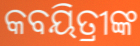
କବୟିତ୍ରୀଙ୍କ